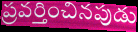
ప్రవర్తించినపుడు